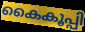
കൈകൂപ്പി